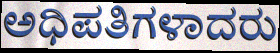
ಅಧಿಪತಿಗಳಾದರು